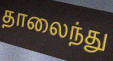
தாலைந்து